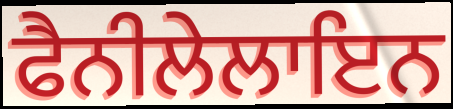
ਫੈਨੀਲੇਲਾਇਨ